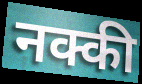
नक्की